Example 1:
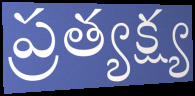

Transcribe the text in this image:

ప్రత్యక్ష్య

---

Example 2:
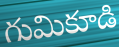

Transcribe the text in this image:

గుమికూడి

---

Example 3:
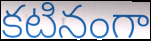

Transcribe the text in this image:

కటినంగా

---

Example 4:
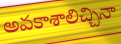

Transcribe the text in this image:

అవకాశాలిచ్చినా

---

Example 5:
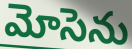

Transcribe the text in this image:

మోసెను